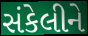
સંકેલીને